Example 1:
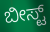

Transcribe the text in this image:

ಬೀಸ್ಟ್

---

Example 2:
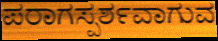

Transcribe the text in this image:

ಪರಾಗಸ್ಪರ್ಶವಾಗುವ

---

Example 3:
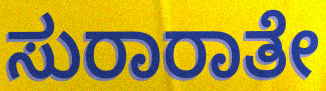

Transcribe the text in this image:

ಸುರಾರಾತೇ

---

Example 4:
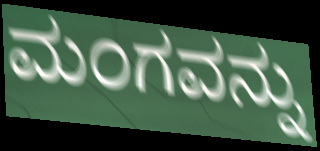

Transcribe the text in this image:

ಮಂಗವನ್ನು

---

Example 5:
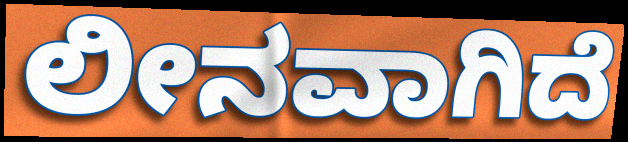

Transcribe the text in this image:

ಲೀನವಾಗಿದೆ